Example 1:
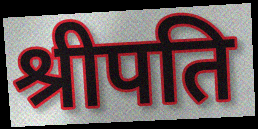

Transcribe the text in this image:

श्रीपति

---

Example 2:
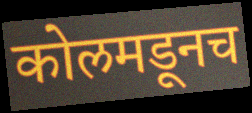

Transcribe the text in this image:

कोलमडूनच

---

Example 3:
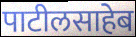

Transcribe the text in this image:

पाटीलसाहेब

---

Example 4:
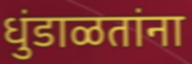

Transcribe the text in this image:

धुंडाळतांना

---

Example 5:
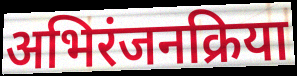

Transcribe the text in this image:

अभिरंजनक्रिया